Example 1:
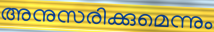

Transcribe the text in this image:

അനുസരിക്കുമെന്നും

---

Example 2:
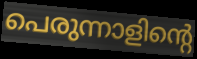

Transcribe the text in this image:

പെരുന്നാളിന്റെ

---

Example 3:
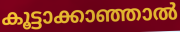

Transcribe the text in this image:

കൂട്ടാക്കാഞ്ഞാൽ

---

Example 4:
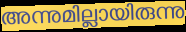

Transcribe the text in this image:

അന്നുമില്ലായിരുന്നു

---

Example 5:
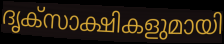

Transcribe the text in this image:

ദൃക്സാക്ഷികളുമായി